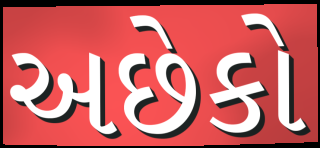
અછેકો